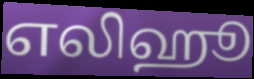
எலிஹூ